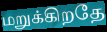
மறுக்கிறதே